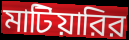
মাটিয়ারির